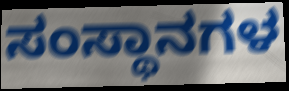
ಸಂಸ್ಥಾನಗಳ